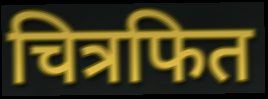
चित्रफित